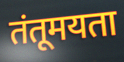
तंतूमयता